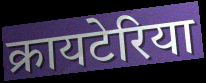
क्रायटेरिया